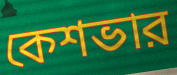
কেশভার